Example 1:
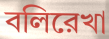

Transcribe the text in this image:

বলিরেখা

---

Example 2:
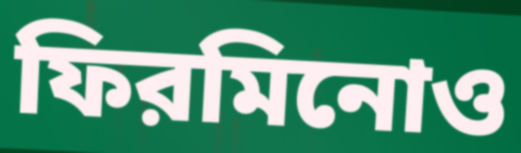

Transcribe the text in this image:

ফিরমিনোও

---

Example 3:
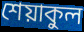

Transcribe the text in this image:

শেয়াকুল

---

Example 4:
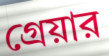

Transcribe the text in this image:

গ্রেয়ার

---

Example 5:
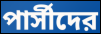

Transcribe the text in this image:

পার্সীদের